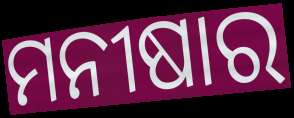
ମନୀଷାର